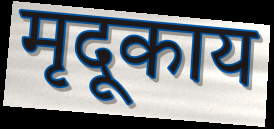
मृदूकाय